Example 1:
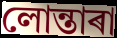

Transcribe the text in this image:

লোন্তাৰা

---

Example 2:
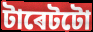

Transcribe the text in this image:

টাৰেটটো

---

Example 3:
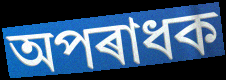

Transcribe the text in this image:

অপৰাধক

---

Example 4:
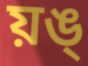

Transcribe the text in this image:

য়ঙ্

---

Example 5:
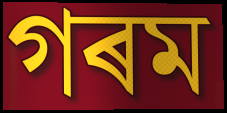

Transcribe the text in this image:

গৰম